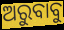
ଅରୁବାବୁ